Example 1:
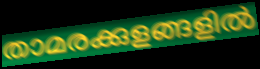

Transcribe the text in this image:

താമരക്കുളങ്ങളിൽ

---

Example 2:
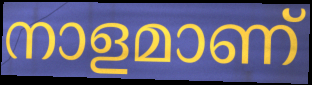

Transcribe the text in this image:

നാളമാണ്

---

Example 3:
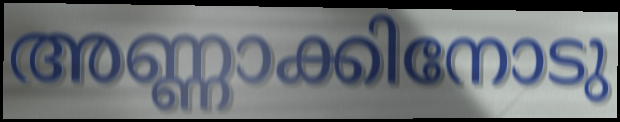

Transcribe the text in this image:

അണ്ണാക്കിനോടു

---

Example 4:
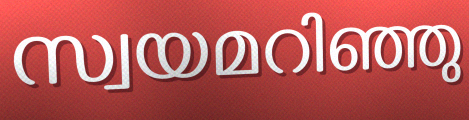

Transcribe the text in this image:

സ്വയമറിഞ്ഞു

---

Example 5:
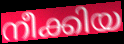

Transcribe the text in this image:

നീക്കിയ